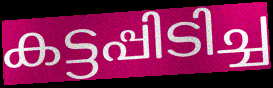
കട്ടപ്പിടിച്ച